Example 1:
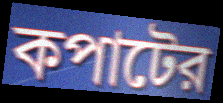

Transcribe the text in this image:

কপাটের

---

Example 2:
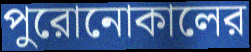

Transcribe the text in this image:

পুরোনোকালের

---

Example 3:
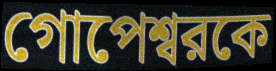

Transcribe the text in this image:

গোপেশ্বরকে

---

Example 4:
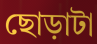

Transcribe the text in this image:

ছোড়াটা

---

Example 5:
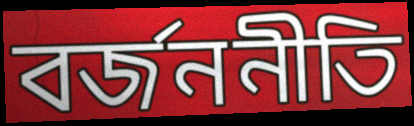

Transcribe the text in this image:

বর্জননীতি